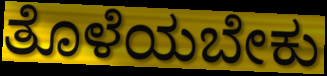
ತೊಳೆಯಬೇಕು